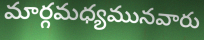
మార్గమధ్యమునవారు